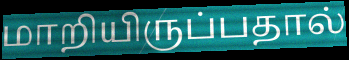
மாறியிருப்பதால்